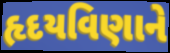
હૃદયવિણાને